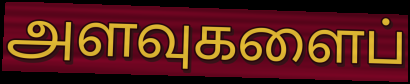
அளவுகளைப்